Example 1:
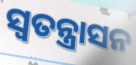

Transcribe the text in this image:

ସ୍ଵତନ୍ତ୍ରାସନ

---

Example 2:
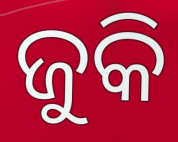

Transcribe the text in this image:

ଜୁକି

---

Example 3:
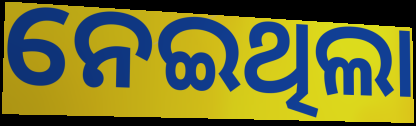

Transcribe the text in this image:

ନେଇଥିଲା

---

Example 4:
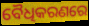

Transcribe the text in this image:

ବୈଧିକରଣରେ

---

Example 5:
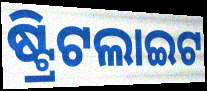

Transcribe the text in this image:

ଷ୍ଟ୍ରିଟଲାଇଟ